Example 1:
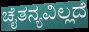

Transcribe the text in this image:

ಚೈತನ್ಯವಿಲ್ಲದೆ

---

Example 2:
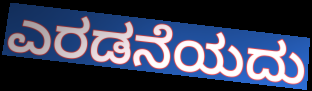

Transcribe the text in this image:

ಎರಡನೆಯದು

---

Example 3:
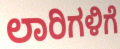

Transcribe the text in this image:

ಲಾರಿಗಳಿಗೆ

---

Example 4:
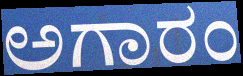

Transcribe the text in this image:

ಅಗಾರಂ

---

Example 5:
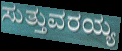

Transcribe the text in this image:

ಸುತ್ತುವರಯ್ಯ